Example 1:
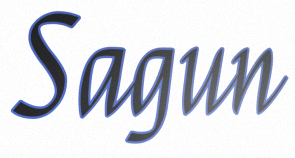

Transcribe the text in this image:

Sagun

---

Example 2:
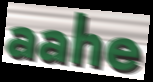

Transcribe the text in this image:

aahe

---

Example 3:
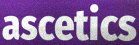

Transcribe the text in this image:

ascetics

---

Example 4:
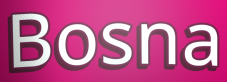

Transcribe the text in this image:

Bosna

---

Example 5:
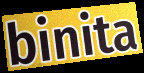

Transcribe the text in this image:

binita